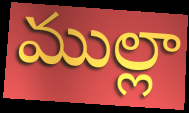
ముల్లా